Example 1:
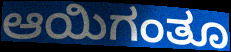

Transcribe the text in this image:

ಆಯಿಗಂತೂ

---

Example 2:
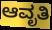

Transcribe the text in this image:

ಆವೃತಿ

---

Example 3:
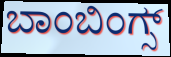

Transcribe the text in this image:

ಬಾಂಬಿಂಗ್ಸ್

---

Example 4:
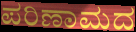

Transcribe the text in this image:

ಪರಿಣಾಮದ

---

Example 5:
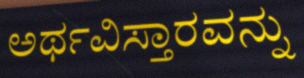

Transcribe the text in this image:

ಅರ್ಥವಿಸ್ತಾರವನ್ನು